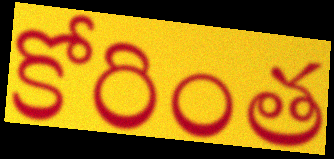
కోరింత